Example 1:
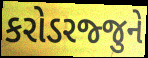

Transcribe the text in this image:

કરોડરજ્જુને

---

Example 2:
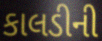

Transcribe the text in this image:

કાલડીની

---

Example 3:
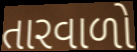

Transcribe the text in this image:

તારવાળો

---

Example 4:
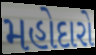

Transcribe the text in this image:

મહોદારો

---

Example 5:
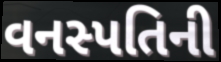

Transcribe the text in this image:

વનસ્પતિની